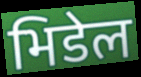
भिडेल